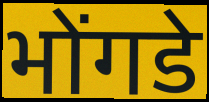
भोंगडे